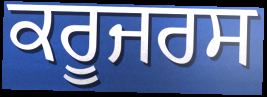
ਕਰੂਜਰਸ